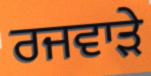
ਰਜਵਾੜੇ